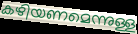
കഴിയണമെന്നുള്ള